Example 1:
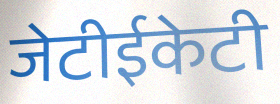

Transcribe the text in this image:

जेटीईकेटी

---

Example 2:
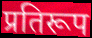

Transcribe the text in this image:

प्रतिरूप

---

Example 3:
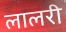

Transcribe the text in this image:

लालरी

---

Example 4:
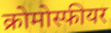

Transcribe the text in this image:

क्रोमोस्फीयर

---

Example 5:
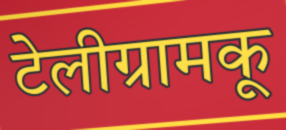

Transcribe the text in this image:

टेलीग्रामकू